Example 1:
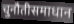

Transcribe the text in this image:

चुनौतीसमाधान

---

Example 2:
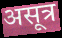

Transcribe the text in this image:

असूत्र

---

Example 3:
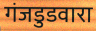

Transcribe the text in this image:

गंजडुडवारा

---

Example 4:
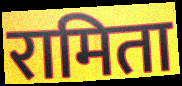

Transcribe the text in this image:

रामिता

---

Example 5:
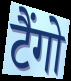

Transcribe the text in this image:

टैंगो